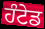
ਹੰਟੇਡ